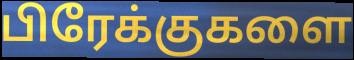
பிரேக்குகளை